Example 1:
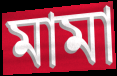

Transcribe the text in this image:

মামা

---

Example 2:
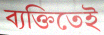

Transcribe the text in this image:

ব্যক্তিতেই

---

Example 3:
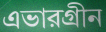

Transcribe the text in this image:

এভারগ্রীন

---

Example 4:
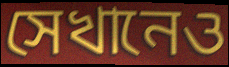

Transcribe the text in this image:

সেখানেও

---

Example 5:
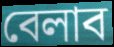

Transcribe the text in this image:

বেলাব